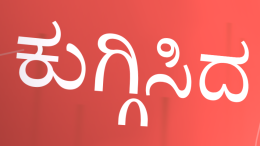
ಕುಗ್ಗಿಸಿದ